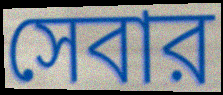
সেবার